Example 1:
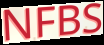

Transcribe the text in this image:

NFBS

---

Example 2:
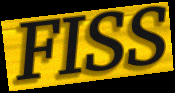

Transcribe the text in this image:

FISS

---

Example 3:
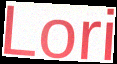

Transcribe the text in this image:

Lori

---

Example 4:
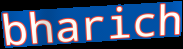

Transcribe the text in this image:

bharich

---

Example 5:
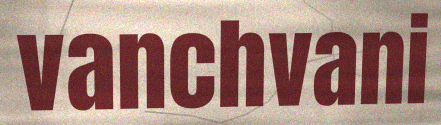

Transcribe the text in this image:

vanchvani